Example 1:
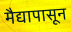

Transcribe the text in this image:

मैद्यापासून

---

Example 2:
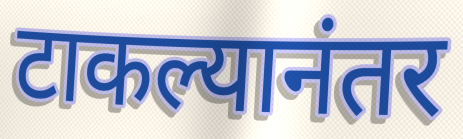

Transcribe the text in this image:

टाकल्यानंतर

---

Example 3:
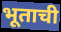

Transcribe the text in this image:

भूताची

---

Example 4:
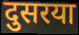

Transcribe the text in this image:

दुसरया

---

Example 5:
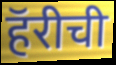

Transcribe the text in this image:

हॅरीची